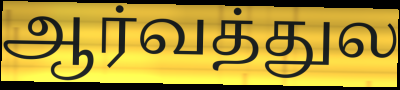
ஆர்வத்துல